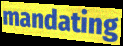
mandating